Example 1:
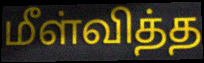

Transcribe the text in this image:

மீள்வித்த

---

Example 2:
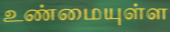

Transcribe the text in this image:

உண்மையுள்ள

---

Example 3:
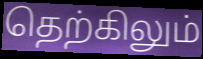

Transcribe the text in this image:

தெற்கிலும்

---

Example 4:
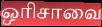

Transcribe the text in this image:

ஒரிசாவை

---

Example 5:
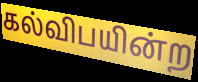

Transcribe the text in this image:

கல்விபயின்ற